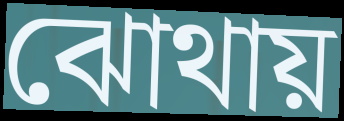
ঝোথায়